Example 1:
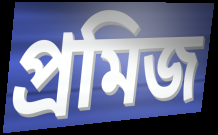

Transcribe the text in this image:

প্রমিজ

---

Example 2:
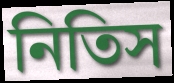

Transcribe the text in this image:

নিতিস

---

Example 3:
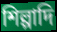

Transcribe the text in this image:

শিল্পাদি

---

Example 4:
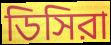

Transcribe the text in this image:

ডিসিরা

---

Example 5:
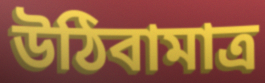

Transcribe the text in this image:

উঠিবামাত্র